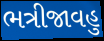
ભત્રીજાવહુ